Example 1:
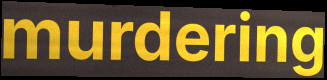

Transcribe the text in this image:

murdering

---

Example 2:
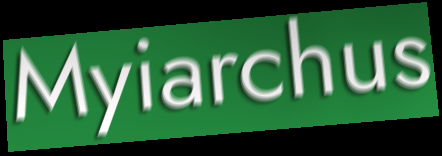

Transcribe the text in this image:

Myiarchus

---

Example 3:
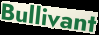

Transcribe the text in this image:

Bullivant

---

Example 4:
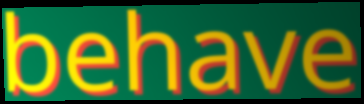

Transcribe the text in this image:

behave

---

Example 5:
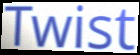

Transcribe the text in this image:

Twist